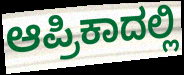
ಆಪ್ರಿಕಾದಲ್ಲಿ